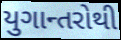
યુગાન્તરોથી